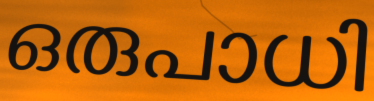
ഒരുപാധി